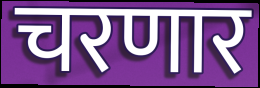
चरणार